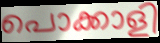
പൊക്കാളി